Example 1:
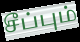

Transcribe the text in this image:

சீப்பும்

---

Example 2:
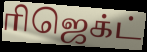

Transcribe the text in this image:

ரிஜெக்ட்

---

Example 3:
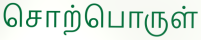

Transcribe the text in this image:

சொற்பொருள்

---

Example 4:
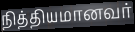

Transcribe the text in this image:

நித்தியமானவர்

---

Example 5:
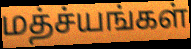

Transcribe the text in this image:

மத்ச்யங்கள்